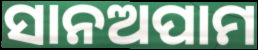
ସାନଅପାମ